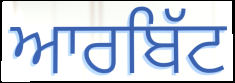
ਆਰਬਿੱਟ